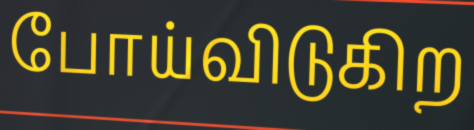
போய்விடுகிற